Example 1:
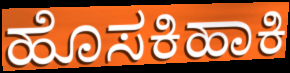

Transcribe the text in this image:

ಹೊಸಕಿಹಾಕಿ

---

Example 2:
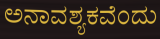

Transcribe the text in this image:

ಅನಾವಶ್ಯಕವೆಂದು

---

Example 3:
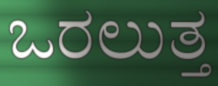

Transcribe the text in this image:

ಒರಲುತ್ತ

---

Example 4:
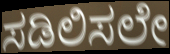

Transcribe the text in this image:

ಸಡಿಲಿಸಲೇ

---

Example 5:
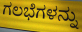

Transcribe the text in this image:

ಗಲಭೆಗಳನ್ನು